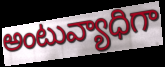
అంటువ్యాధిగా